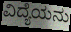
ವಿದ್ಯೆಯನು